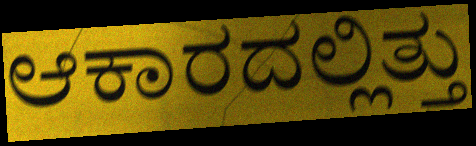
ಆಕಾರದಲ್ಲಿತ್ತು